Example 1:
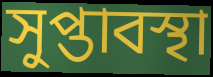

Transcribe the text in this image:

সুপ্তাবস্থা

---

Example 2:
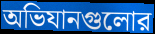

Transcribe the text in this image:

অভিযানগুলোর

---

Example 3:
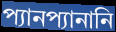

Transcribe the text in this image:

প্যানপ্যানানি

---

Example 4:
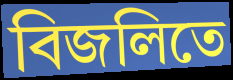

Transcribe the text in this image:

বিজলিতে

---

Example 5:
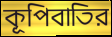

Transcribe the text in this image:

কূপিবাতির